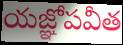
యజ్ఞోపవీత